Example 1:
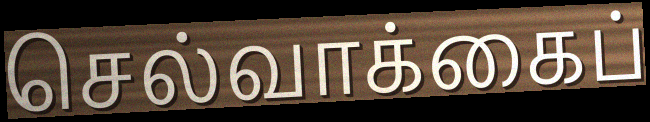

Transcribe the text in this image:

செல்வாக்கைப்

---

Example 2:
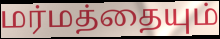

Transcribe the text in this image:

மர்மத்தையும்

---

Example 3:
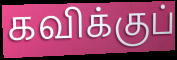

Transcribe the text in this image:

கவிக்குப்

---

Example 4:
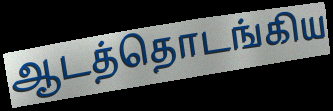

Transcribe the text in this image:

ஆடத்தொடங்கிய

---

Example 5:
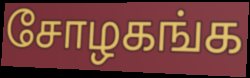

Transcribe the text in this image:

சோழகங்க